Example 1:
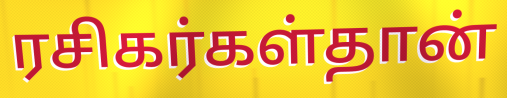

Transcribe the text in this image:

ரசிகர்கள்தான்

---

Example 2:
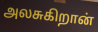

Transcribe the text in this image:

அலசுகிறான்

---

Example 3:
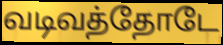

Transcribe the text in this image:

வடிவத்தோடே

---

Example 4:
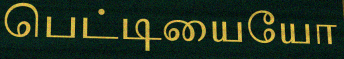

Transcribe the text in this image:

பெட்டியையோ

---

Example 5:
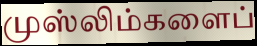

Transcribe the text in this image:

முஸ்லிம்களைப்